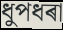
ধুপধৰা